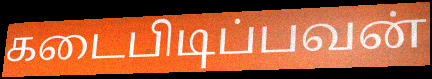
கடைபிடிப்பவன்